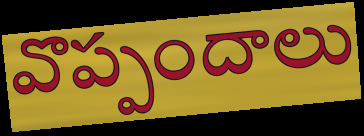
వొప్పందాలు